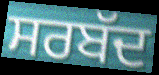
ਸਰਬੱਦ